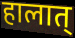
हालात्